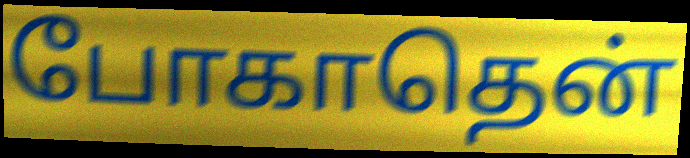
போகாதென்